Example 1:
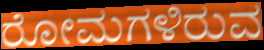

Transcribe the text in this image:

ರೋಮಗಳಿರುವ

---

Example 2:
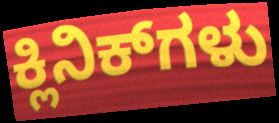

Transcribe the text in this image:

ಕ್ಲಿನಿಕ್‌ಗಳು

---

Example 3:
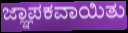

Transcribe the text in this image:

ಜ್ಞಾಪಕವಾಯಿತು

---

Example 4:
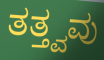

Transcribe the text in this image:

ತತ್ತ್ವವು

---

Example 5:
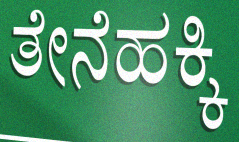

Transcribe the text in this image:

ತೇನೆಹಕ್ಕಿ